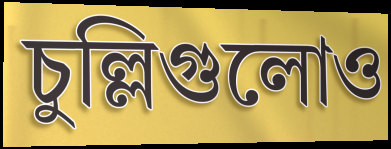
চুল্লিগুলোও